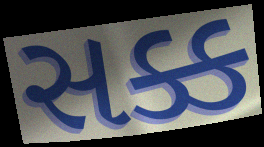
સક્ક